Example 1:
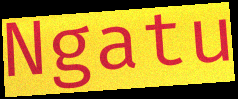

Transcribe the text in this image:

Ngatu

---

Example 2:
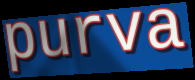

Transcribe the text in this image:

purva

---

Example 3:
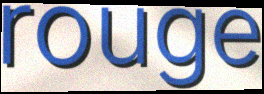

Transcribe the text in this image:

rouge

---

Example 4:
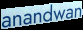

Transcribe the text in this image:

anandwan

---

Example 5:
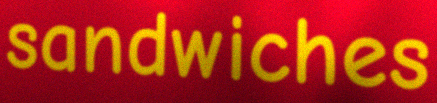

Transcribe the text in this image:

sandwiches